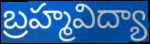
బ్రహ్మవిద్యా